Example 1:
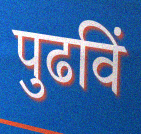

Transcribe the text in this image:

पुढविं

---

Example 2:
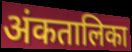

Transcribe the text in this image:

अंकतालिका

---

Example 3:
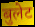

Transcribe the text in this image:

बुलेट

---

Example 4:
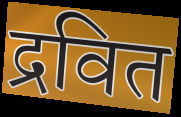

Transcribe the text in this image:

द्रवित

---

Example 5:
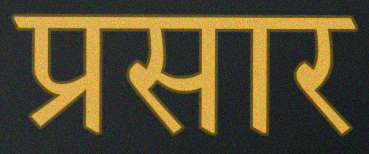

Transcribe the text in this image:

प्रसार